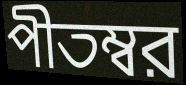
পীতম্বর